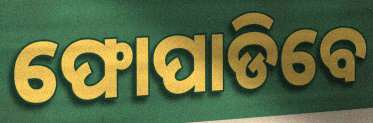
ଫୋପାଡିବେ